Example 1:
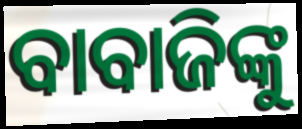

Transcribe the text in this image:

ବାବାଜିଙ୍କୁ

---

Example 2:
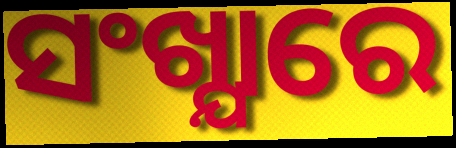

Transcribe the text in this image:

ସଂଖ୍ଯାରେ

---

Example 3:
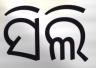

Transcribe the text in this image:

ସିଲି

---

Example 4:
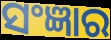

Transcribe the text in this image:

ସଂଜ୍ଞାର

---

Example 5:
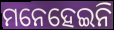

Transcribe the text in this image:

ମନେହେଇନି